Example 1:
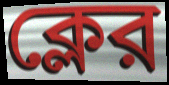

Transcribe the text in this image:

ক্লের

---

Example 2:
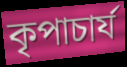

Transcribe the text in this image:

কৃপাচার্য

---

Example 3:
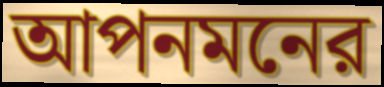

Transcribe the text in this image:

আপনমনের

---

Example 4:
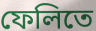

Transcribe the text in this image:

ফেলিতে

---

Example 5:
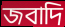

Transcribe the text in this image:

জবাদি